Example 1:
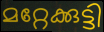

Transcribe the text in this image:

മറ്റേക്കുട്ടി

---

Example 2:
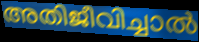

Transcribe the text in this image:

അതിജീവിച്ചാൽ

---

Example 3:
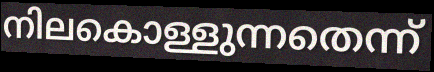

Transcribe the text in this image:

നിലകൊള്ളുന്നതെന്ന്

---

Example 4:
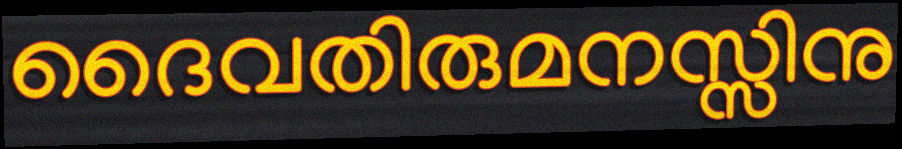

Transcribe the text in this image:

ദൈവതിരുമനസ്സിനു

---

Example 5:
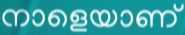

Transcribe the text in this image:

നാളെയാണ്